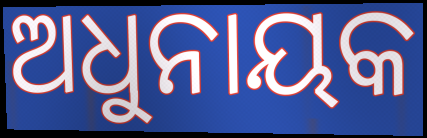
ଅଧୁନାୟକ